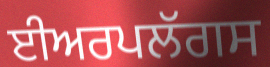
ਈਅਰਪਲੱਗਸ